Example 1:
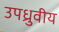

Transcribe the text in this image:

उपध्रुवीय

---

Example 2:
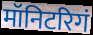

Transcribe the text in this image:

मॉनिटरिगं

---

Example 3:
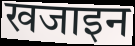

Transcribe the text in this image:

खजाइन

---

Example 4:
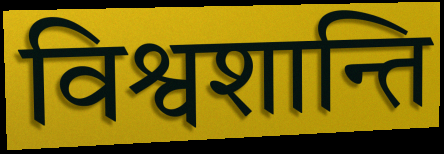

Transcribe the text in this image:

विश्वशान्ति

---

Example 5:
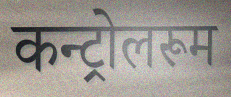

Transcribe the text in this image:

कन्ट्रोलरूम